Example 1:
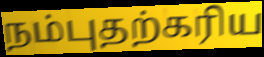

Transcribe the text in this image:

நம்புதற்கரிய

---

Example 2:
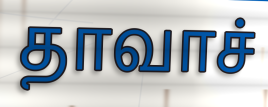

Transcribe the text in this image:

தாவாச்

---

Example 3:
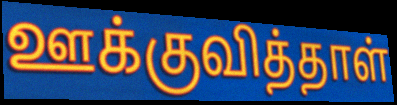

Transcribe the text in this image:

ஊக்குவித்தாள்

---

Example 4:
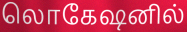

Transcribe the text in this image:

லொகேஷனில்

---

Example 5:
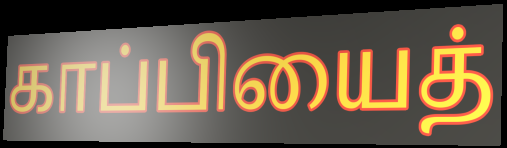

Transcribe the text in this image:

காப்பியைத்